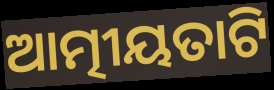
ଆତ୍ମୀୟତାଟି